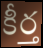
కీర్త